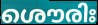
ശൌരിഃ